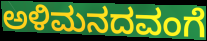
ಅಳಿಮನದವಂಗೆ